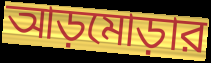
আড়মোড়ার